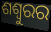
ଶଶ୍ୱୁରର